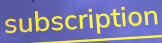
subscription